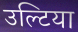
उल्टिया